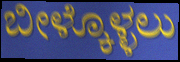
ಬೀಳ್ಕೊಳ್ಳಲು